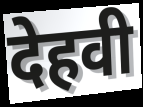
देहवी